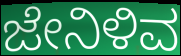
ಜೇನಿಳಿವ